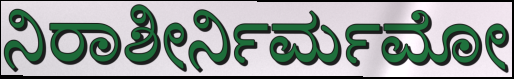
ನಿರಾಶೀರ್ನಿರ್ಮಮೋ